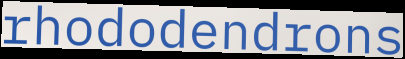
rhododendrons